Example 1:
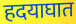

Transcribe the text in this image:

हदयाघात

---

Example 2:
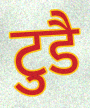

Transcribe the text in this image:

टुडै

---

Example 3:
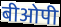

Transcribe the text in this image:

बीओपी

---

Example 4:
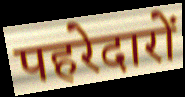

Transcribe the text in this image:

पहरेदारों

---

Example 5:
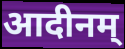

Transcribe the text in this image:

आदीनम्